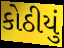
કોઠીયું